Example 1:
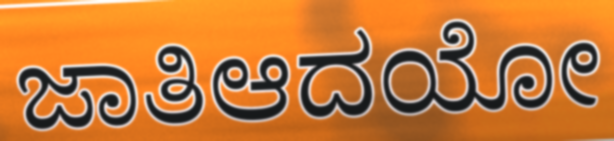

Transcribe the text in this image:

ಜಾತಿಆದಯೋ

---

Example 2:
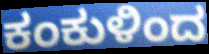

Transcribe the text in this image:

ಕಂಕುಳಿಂದ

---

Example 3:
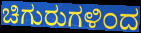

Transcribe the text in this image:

ಚಿಗುರುಗಳಿಂದ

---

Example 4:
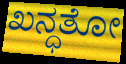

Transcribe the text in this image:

ಖನ್ಧತೋ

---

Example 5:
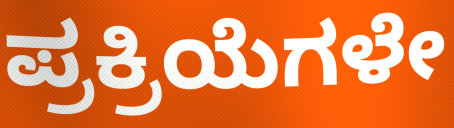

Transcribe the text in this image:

ಪ್ರಕ್ರಿಯೆಗಳೇ